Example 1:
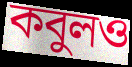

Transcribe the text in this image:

কবুলও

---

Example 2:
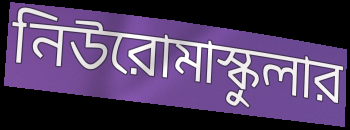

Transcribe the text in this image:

নিউরোমাস্কুলার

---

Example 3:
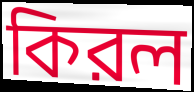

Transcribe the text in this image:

কিরল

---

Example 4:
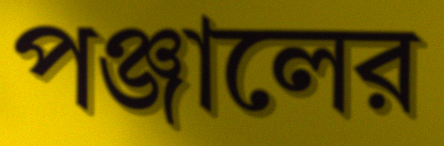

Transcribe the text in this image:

পঞ্জালের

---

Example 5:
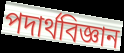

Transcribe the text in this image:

পদার্থবিজ্ঞান